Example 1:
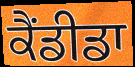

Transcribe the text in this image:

ਕੈਂਡੀਡਾ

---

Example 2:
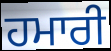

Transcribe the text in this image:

ਹਮਾਰੀ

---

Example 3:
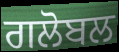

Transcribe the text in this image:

ਗਲੋਬਲ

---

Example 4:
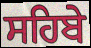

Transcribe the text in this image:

ਸਹਿਬੇ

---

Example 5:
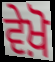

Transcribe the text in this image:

ਵੇਖ਼ੋ